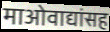
माओवाद्यांसह